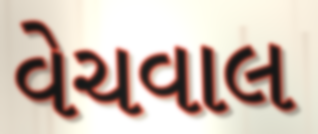
વેચવાલ